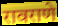
रावराणे